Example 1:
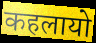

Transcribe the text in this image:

कहलायो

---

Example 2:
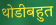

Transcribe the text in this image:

थोडीबहुत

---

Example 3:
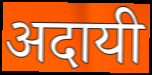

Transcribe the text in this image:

अदायी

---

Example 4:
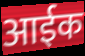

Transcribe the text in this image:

आईक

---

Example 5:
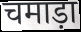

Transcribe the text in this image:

चमाड़ा